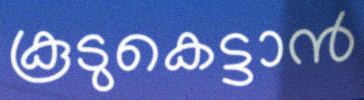
കൂടുകെട്ടാൻ